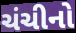
ચંચીનો